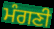
ਮੰਗਣੀ